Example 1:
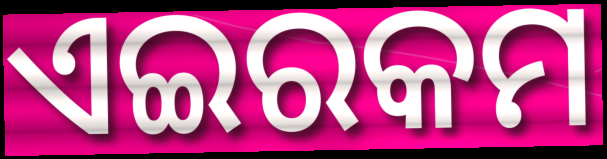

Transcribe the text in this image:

ଏଇରକମ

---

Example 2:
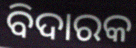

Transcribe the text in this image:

ବିଦାରକ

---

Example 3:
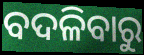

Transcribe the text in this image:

ବଦଳିବାରୁ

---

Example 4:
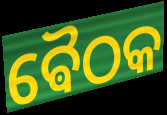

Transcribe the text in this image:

ଵୈଠକ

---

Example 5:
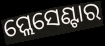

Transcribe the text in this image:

ପ୍ଲେସେଣ୍ଟାର